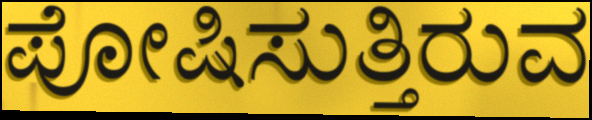
ಪೋಷಿಸುತ್ತಿರುವ